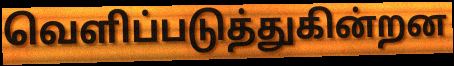
வெளிப்படுத்துகின்றன